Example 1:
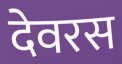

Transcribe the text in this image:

देवरस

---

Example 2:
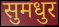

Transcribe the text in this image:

सुमधुर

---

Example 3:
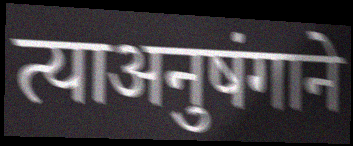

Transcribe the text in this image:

त्याअनुषंगाने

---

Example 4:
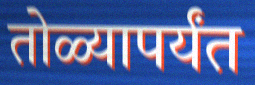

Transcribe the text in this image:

तोळ्यापर्यंत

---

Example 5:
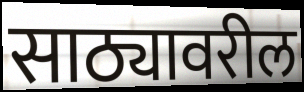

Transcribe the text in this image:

साठ्यावरील